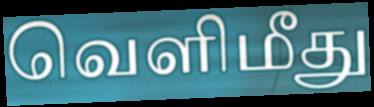
வெளிமீது